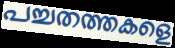
പച്ചതത്തകളെ